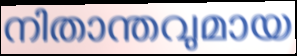
നിതാന്തവുമായ